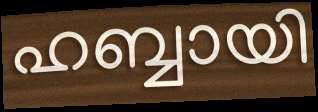
ഹബ്ബായി